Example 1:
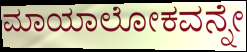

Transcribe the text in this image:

ಮಾಯಾಲೋಕವನ್ನೇ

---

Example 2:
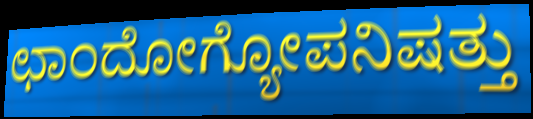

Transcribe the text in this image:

ಛಾಂದೋಗ್ಯೋಪನಿಷತ್ತು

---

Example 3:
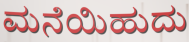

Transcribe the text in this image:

ಮನೆಯಿಹುದು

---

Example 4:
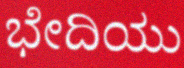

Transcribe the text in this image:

ಭೇದಿಯು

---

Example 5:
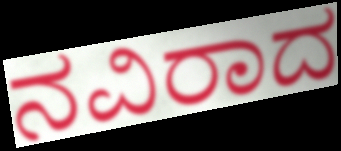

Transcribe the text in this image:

ನವಿರಾದ